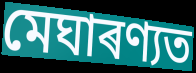
মেঘাৰণ্যত